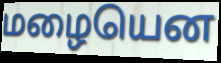
மழையென